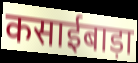
कसाईबाड़ा